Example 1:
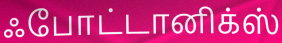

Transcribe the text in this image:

ஃபோட்டானிக்ஸ்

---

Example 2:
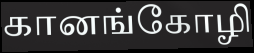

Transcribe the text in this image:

கானங்கோழி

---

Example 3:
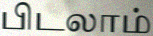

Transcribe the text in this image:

பிடலாம்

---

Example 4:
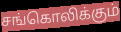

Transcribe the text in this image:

சங்கொலிக்கும்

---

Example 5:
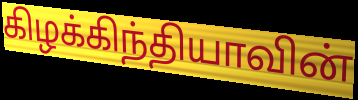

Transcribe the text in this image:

கிழக்கிந்தியாவின்